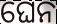
ଘେନ